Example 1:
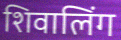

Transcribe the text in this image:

शिवालिंग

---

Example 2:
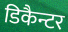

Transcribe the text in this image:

डिकैन्टर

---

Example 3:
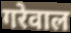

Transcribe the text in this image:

गरेवाल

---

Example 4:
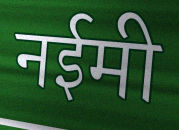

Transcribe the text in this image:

नईमी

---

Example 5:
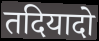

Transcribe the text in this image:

तदियादो